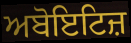
ਅਬੋਇਟਿਜ਼